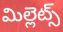
మిల్లెట్స్